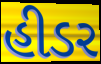
હીડર